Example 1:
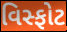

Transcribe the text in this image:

વિસ્ફોટ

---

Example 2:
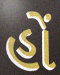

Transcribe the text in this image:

હોં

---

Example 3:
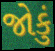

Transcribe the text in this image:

જોકું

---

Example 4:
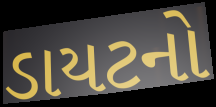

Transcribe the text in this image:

ડાયટનો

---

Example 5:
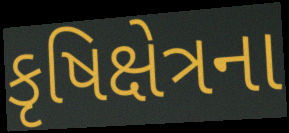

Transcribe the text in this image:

કૃષિક્ષેત્રના